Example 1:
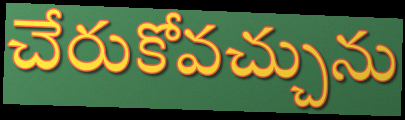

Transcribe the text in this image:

చేరుకోవచ్చును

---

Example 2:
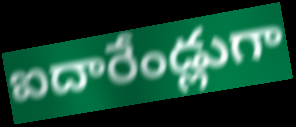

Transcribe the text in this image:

ఐదారేండ్లుగా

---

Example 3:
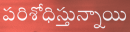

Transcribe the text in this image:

పరిశోధిస్తున్నాయి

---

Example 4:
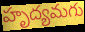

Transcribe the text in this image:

హృద్యమగు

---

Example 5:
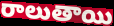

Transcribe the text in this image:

రాలుతాయి